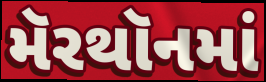
મૅરથૉનમાં